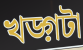
খড়্গটা